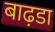
बाढ़डा